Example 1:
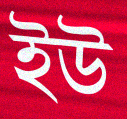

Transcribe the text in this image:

ইউ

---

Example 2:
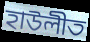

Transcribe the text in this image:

হাউলীত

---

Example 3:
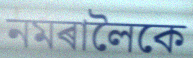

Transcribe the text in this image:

নমৰালৈকে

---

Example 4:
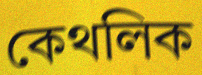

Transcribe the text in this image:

কেথলিক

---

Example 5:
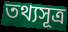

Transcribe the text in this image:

তথ্যসূত্ৰ